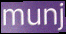
munj